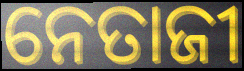
ନେତାଜୀ